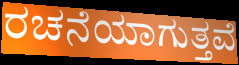
ರಚನೆಯಾಗುತ್ತವೆ